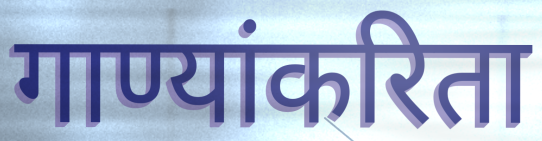
गाण्यांकरिता